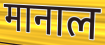
मानाल